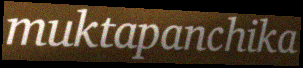
muktapanchika